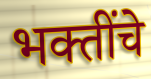
भक्तींचे